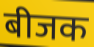
बीजक